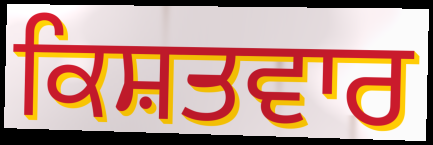
ਕਿਸ਼ਤਵਾਰ